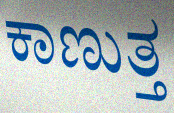
ಕಾಣುತ್ತ